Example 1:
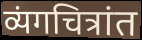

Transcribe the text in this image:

व्यंगचित्रांत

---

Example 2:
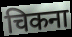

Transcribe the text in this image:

चिकना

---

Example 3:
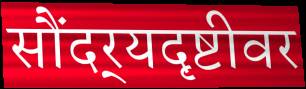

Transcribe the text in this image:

सौंदर्यदृष्टीवर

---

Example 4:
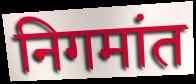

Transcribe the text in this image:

निगमांत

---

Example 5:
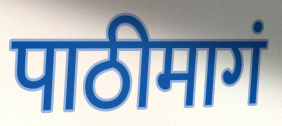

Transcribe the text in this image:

पाठीमागं